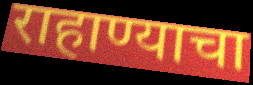
राहाण्याचा